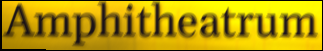
Amphitheatrum